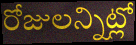
రోజులన్నిట్లో